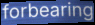
forbearing